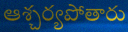
ఆశ్చర్యపోతారు